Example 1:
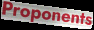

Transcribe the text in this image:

Proponents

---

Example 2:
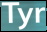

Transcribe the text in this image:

Tyr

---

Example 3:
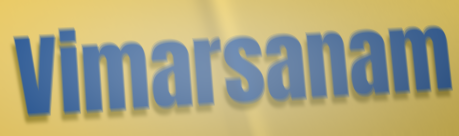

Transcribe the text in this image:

Vimarsanam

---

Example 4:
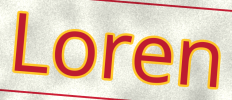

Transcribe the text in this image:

Loren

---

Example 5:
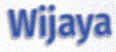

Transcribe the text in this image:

Wijaya